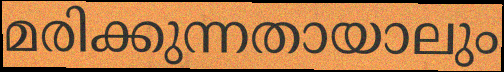
മരിക്കുന്നതായാലും